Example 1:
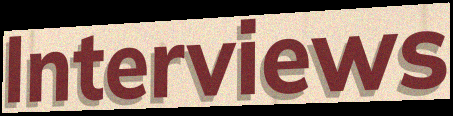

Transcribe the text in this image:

Interviews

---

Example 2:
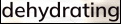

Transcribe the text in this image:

dehydrating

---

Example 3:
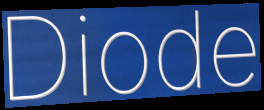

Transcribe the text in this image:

Diode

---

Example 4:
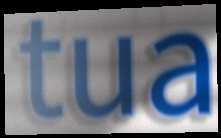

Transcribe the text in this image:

tua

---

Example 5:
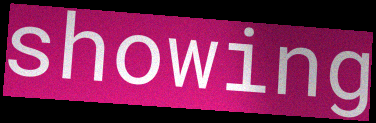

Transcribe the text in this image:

showing